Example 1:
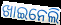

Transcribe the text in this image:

ଖାଇନେଲି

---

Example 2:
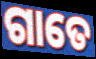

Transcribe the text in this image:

ଗାତେ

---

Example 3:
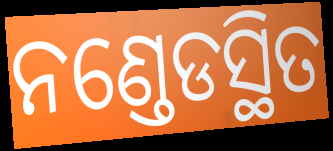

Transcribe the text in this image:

ନଣ୍ଡେଡସ୍ଥିତ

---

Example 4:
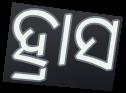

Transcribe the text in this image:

ହ୍ରାସ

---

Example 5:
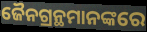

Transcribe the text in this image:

ଜୈନଗ୍ରନ୍ଥମାନଙ୍କରେ